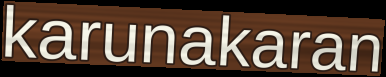
karunakaran